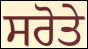
ਸਰੋਤੇ